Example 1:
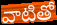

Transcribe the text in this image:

వాటితో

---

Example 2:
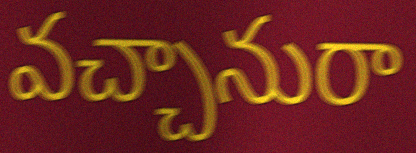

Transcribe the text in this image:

వచ్చానురా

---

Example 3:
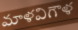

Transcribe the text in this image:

మాళవిగౌళ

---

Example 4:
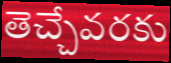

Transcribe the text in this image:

తెచ్చేవరకు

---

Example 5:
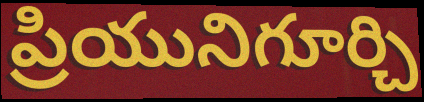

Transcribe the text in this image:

ప్రియునిగూర్చి